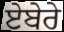
ਏਬੇਰੇ